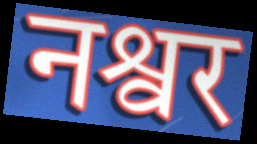
नश्वर